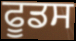
ਫੂਡਸ